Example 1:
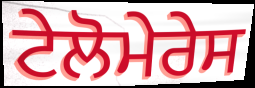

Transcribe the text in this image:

ਟੇਲੋਮੇਰੇਸ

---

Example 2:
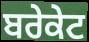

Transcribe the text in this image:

ਬਰੇਕੇਟ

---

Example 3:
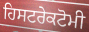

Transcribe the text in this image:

ਹਿਸਟਰੇਕਟੋਮੀ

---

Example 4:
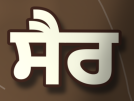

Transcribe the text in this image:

ਸੈਰ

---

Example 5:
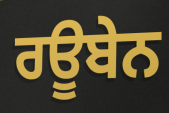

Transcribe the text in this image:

ਰਊਬੇਨ